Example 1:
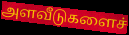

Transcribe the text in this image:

அளவீடுகளைச்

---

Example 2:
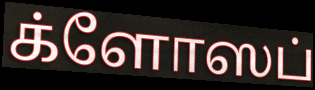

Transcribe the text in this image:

க்ளோஸப்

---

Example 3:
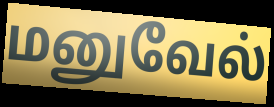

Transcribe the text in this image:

மனுவேல்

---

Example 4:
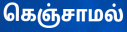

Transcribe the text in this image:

கெஞ்சாமல்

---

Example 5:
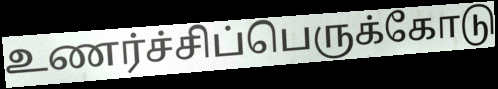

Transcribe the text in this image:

உணர்ச்சிப்பெருக்கோடு